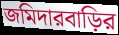
জমিদারবাড়ির